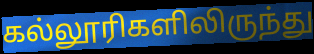
கல்லூரிகளிலிருந்து